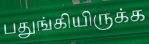
பதுங்கியிருக்க